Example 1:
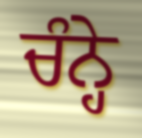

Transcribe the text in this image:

ਚੰਨ੍ਹੇ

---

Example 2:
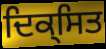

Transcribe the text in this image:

ਦਿਕ੍ਸਿਤ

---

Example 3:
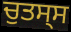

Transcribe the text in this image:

ਚੁਤਸ੍ਸ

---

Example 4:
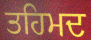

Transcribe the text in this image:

ਤਹਿਮਦ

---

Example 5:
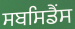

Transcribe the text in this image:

ਸਬਸਿਡੈਂਸ